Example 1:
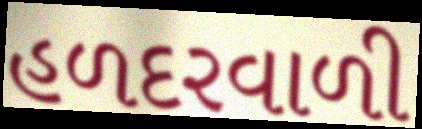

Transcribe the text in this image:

હળદરવાળી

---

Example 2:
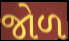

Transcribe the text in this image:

જોળ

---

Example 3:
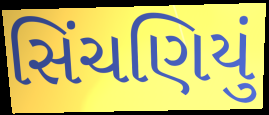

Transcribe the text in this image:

સિંચણિયું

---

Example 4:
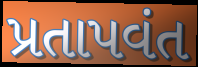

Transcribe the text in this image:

પ્રતાપવંત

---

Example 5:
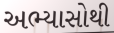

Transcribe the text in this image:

અભ્યાસોથી